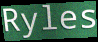
Ryles